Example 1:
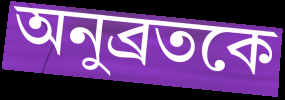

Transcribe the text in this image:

অনুব্রতকে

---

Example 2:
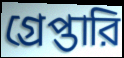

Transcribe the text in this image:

গ্রেপ্তারি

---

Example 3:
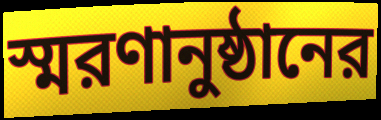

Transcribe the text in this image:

স্মরণানুষ্ঠানের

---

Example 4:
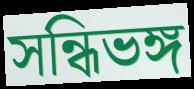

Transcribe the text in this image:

সন্ধিভঙ্গ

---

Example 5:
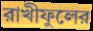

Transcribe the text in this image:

রাখীফুলের